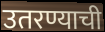
उतरण्याची